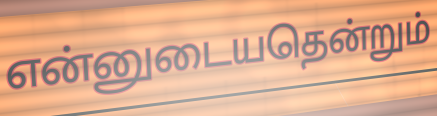
என்னுடையதென்றும்